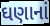
ઘણાનાં